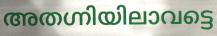
അതഗ്നിയിലാവട്ടെ